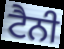
ਟੈਨੀ